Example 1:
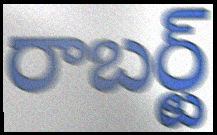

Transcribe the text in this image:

రాబర్ట్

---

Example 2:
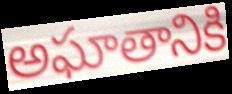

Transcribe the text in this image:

అఘాతానికి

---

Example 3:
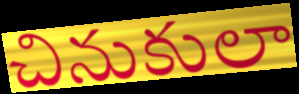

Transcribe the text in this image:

చినుకులా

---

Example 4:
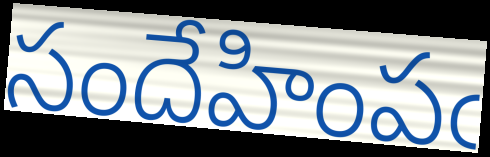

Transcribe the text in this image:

సందేహింపఁ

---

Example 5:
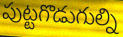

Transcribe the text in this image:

పుట్టగొడుగుల్ని